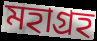
মহাগ্রহ